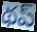
థప్